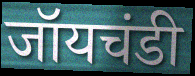
जॉयचंडी